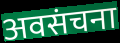
अवसंचना